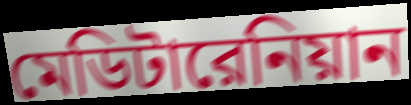
মেডিটারেনিয়ান